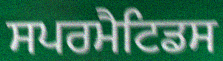
ਸਪਰਮੈਟਿਡਸ